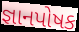
જ્ઞાનપોષક